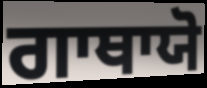
ਗਾਥਾਯੋ